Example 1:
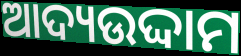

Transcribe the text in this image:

ଆଦ୍ୟଉଦ୍ଦାମ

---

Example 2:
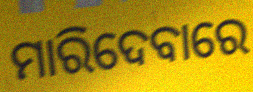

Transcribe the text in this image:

ମାରିଦେବାରେ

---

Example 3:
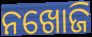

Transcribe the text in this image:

ନଖୋଜି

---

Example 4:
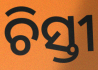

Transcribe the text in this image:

ଚିସ୍ତୀ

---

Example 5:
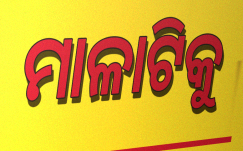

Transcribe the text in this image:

ମାଳାଟିକୁ